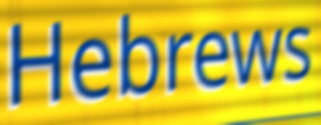
Hebrews